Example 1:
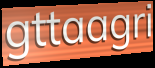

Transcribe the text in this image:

gttaagri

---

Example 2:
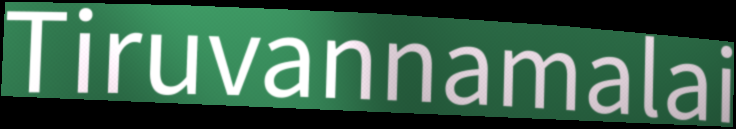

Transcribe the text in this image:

Tiruvannamalai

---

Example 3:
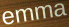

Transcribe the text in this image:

emma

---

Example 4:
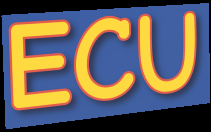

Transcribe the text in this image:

ECU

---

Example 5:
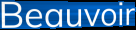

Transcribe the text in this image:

Beauvoir